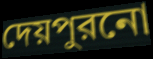
দেয়পুরনো